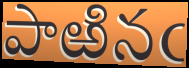
పాఱినఁ